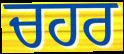
ਚਹਰ